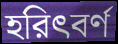
হরিৎবর্ণ